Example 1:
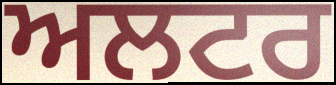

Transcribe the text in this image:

ਅਲਟਰ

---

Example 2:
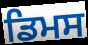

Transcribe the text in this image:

ਡਿਮਸ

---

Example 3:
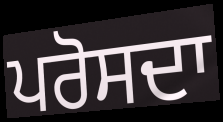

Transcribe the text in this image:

ਪਰੋਸਦਾ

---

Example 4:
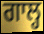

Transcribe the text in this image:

ਗਾਲ੍ਹ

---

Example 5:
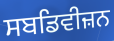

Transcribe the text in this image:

ਸਬਡਿਵੀਜ਼ਨ